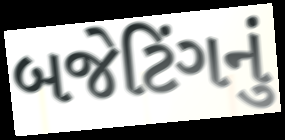
બજેટિંગનું